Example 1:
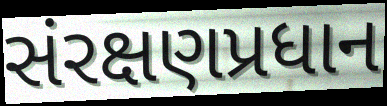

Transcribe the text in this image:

સંરક્ષણપ્રધાન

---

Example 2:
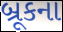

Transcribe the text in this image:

બ્રૂકના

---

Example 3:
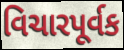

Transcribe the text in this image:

વિચારપૂર્વક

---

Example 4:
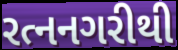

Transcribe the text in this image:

રત્નનગરીથી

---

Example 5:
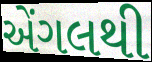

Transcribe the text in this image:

એંગલથી